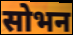
सोभन